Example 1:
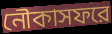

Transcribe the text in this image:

নৌকাসফরে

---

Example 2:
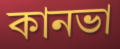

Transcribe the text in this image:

কানভা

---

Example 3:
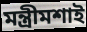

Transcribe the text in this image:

মন্ত্রীমশাই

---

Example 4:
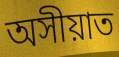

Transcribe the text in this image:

অসীয়াত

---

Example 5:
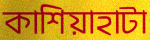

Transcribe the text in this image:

কাশিয়াহাটা